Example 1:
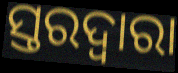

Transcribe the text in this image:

ସ୍ତରଦ୍ୱାରା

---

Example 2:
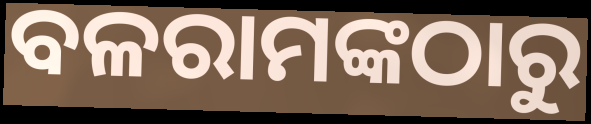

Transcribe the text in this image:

ବଳରାମଙ୍କଠାରୁ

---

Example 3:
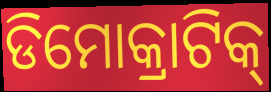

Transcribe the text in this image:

ଡିମୋକ୍ରାଟିକ୍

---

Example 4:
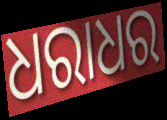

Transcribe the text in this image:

ଧରାଧର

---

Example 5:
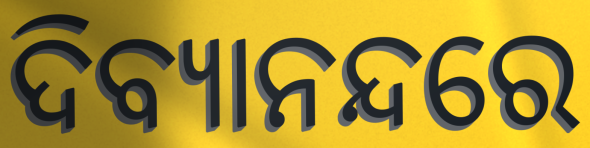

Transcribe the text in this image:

ଦିବ୍ୟାନନ୍ଦରେ